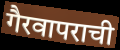
गैरवापराची